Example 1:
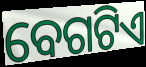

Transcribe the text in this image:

ବେଗଟିଏ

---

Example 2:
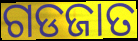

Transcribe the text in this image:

ଗଡଜାତ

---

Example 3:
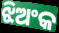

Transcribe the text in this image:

ଝିଅଂକ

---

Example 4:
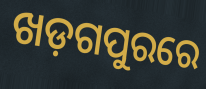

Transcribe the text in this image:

ଖଡ଼ଗପୁରରେ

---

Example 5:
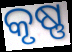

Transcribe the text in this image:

କୃଷ୍ଣ